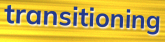
transitioning